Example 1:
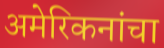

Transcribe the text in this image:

अमेरिकनांचा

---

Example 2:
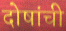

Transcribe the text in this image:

दोषांची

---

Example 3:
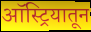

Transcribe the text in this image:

ऑस्ट्रियातून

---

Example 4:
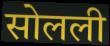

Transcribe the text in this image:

सोलली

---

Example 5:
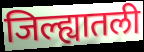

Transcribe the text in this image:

जिल्ह्यातली